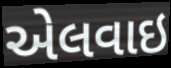
એલવાઇ